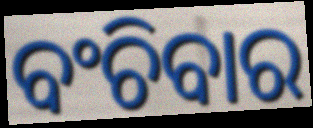
ବଂଚିବାର